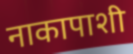
नाकापाशी